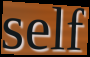
self